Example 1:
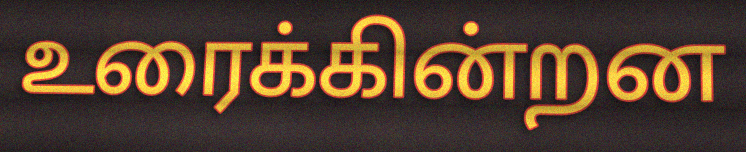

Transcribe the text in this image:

உரைக்கின்றன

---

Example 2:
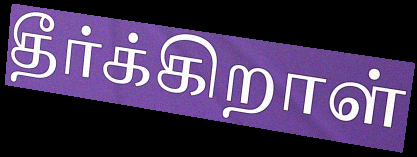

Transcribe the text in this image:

தீர்க்கிறாள்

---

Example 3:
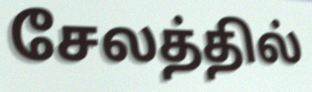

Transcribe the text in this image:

சேலத்தில்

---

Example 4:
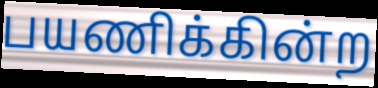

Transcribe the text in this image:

பயணிக்கின்ற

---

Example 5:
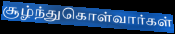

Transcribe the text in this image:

சூழ்ந்துகொள்வார்கள்